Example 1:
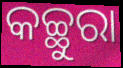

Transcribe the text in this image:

କଚ୍ଛୁରା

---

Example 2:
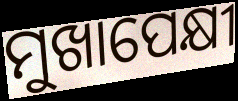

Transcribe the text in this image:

ମୁଖାପେକ୍ଷୀ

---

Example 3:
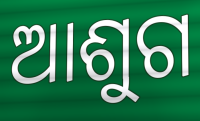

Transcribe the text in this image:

ଆଶୁଗ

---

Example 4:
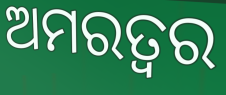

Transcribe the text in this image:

ଅମରତ୍ୱର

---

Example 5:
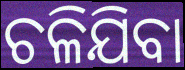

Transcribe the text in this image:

ଚଳିଯିବା